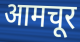
आमचूर